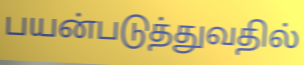
பயன்படுத்துவதில்